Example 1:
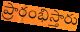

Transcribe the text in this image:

ప్రారంభిస్తారు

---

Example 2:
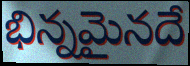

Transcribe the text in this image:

భిన్నమైనదే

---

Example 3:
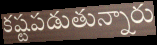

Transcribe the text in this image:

కష్టపడుతున్నారు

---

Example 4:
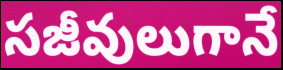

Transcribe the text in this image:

సజీవులుగానే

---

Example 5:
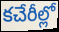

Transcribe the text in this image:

కచేరీల్లో